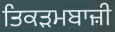
ਤਿਕੜਮਬਾਜ਼ੀ